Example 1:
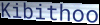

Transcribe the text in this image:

Kibithoo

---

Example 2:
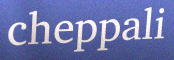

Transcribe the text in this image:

cheppali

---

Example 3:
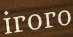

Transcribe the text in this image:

iroro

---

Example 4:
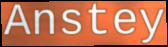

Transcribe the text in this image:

Anstey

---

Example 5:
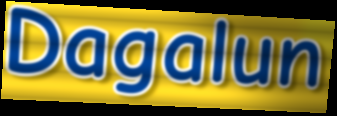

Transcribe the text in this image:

Dagalun